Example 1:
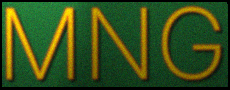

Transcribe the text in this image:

MNG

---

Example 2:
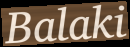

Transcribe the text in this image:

Balaki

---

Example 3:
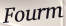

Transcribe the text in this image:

Fourm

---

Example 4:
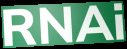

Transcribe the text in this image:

RNAi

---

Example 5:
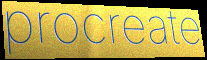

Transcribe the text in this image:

procreate